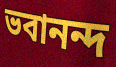
ভবানন্দ